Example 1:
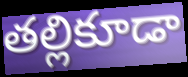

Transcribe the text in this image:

తల్లికూడా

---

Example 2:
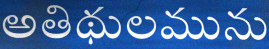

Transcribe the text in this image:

అతిథులమును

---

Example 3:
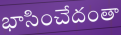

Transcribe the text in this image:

భాసించేదంతా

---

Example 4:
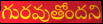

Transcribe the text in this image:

గురవుతోందని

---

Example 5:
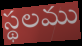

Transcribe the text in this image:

స్థలము